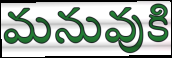
మనువుకి